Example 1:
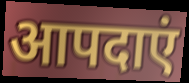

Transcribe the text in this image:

आपदाएं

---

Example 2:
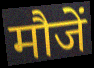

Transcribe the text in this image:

मौजें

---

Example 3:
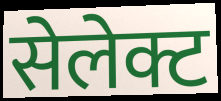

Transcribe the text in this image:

सेलेक्ट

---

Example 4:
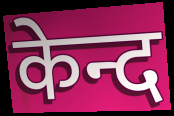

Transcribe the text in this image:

केन्द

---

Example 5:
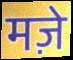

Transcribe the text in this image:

मज़े